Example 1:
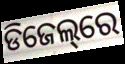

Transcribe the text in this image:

ଡିଜେଲ୍‌ରେ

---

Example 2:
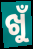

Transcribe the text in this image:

ଖୁଁ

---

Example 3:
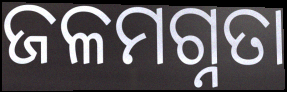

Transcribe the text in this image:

ଜଳମଗ୍ନତା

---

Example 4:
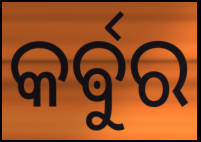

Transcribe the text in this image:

କର୍ଵୁର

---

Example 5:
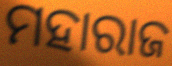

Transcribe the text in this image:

ମହାରାଜ